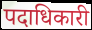
पदाधिकारी